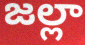
జల్లా